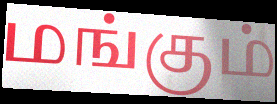
மங்கும்